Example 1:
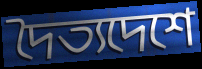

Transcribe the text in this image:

দৈত্যদেশে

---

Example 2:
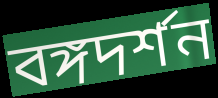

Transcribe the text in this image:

বঙ্গদর্শন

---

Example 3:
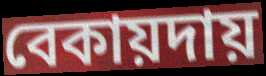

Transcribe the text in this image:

বেকায়দায়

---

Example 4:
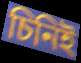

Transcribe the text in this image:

চিনিই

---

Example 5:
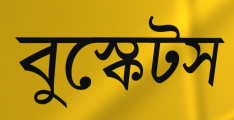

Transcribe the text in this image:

বুস্কেটস